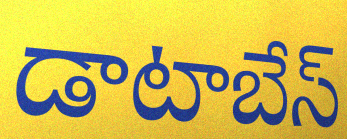
డాటాబేస్